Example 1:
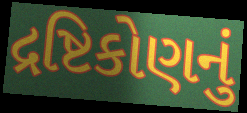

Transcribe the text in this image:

દ્રષ્ટિકોણનું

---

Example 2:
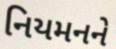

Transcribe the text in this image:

નિયમનને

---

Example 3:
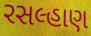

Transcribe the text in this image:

રસલ્હાણ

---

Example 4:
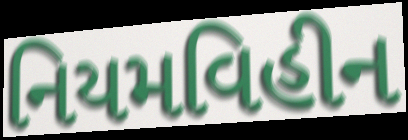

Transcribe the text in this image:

નિયમવિહીન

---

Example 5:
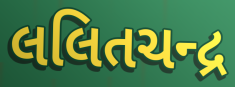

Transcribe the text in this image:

લલિતચન્દ્ર